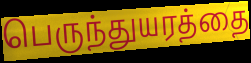
பெருந்துயரத்தை